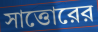
সাত্তোরের